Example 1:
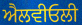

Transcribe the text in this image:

ਐਲਵੀਓਲੀ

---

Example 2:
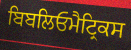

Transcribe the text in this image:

ਬਿਬਲਿਓਮੈਟ੍ਰਿਕਸ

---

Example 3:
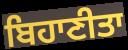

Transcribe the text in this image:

ਬਿਹਾਣੀਤਾ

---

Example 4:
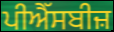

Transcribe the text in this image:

ਪੀਐੱਸਬੀਜ਼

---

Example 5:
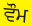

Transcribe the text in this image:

ਵੌਮ